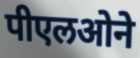
पीएलओने